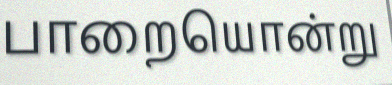
பாறையொன்று